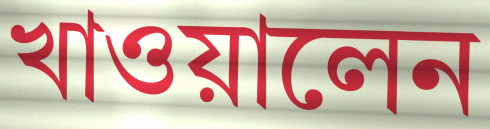
খাওয়ালেন